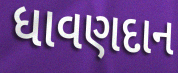
ધાવણદાન